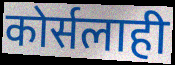
कोर्सलाही